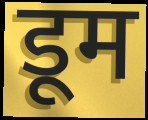
डूम